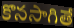
కొనసాగితే